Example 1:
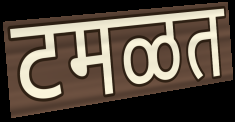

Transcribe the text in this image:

टमळत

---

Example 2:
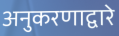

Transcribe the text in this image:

अनुकरणाद्वारे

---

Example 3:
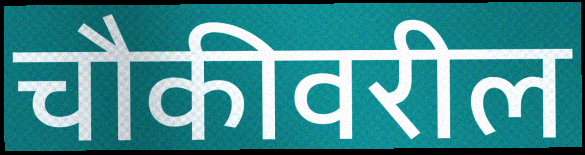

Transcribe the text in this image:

चौकीवरील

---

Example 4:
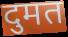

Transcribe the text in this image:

दुमत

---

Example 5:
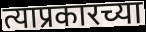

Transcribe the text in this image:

त्याप्रकारच्या